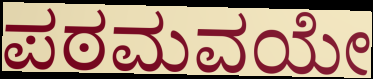
ಪಠಮವಯೇ